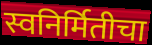
स्वनिर्मितीचा